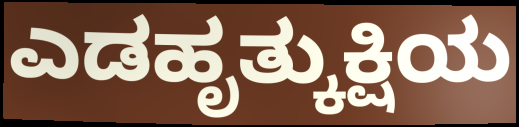
ಎಡಹೃತ್ಕುಕ್ಷಿಯ